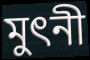
মুৎনী